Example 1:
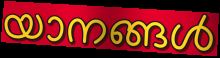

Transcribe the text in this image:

യാനങ്ങൾ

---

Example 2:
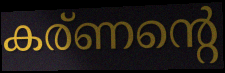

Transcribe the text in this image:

കര്ണന്റെ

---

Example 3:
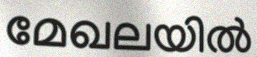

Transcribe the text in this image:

മേഖലയിൽ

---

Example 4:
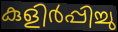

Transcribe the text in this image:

കുളിർപ്പിച്ചു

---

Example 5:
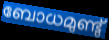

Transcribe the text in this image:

ബോധമുണ്ടു്